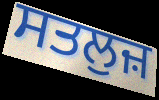
ਸਤਲੁਜ਼